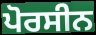
ਪੋਰਸੀਨ